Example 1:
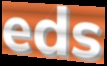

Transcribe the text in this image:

eds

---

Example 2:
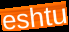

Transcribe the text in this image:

eshtu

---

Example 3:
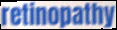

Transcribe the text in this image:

retinopathy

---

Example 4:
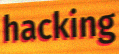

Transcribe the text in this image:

hacking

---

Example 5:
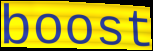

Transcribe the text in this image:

boost